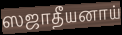
ஸஜாதீயனாய்